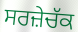
ਸਰਜ਼ੇਚੱਕ